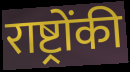
राष्ट्रोंकी